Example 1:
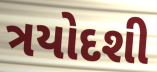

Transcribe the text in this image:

ત્રયોદશી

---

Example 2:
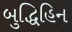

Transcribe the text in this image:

બુદ્ધિહિન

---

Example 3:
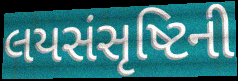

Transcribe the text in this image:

લયસંસૃષ્ટિની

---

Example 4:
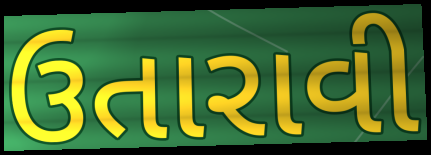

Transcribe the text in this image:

ઉતારાવી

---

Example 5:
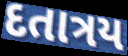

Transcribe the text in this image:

દતાત્રય